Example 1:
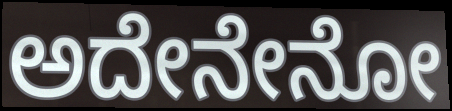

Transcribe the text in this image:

ಅದೇನೇನೋ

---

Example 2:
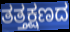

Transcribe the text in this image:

ತತ್ತಕ್ಷಣದ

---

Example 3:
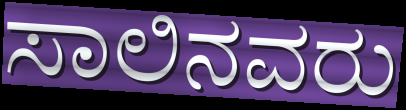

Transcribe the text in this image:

ಸಾಲಿನವರು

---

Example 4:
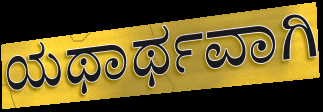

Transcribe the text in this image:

ಯಥಾರ್ಥವಾಗಿ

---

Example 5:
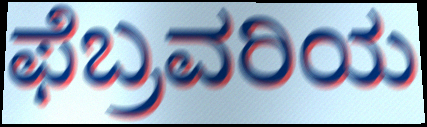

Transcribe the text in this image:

ಫೆಬ್ರವರಿಯ